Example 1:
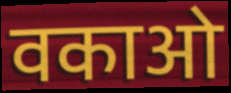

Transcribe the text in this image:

वकाओ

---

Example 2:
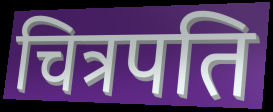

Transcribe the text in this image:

चित्रपति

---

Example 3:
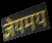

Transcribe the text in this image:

ज्ञेयमय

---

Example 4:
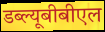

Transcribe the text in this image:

डब्ल्यूबीबीएल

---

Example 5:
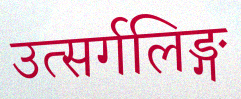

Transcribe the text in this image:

उत्सर्गलिङ्ग